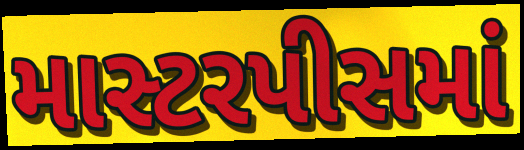
માસ્ટરપીસમાં